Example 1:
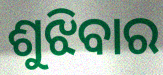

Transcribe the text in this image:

ଶୁଝିବାର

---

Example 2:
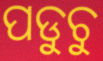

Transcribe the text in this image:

ପଡୁଚୁ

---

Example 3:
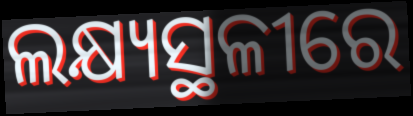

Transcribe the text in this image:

ଲକ୍ଷ୍ୟସ୍ଥଳୀରେ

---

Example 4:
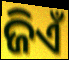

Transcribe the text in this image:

ଜିଏଁ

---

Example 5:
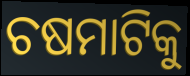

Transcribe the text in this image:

ଚଷମାଟିକୁ